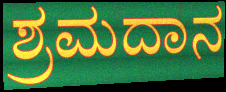
ಶ್ರಮದಾನ